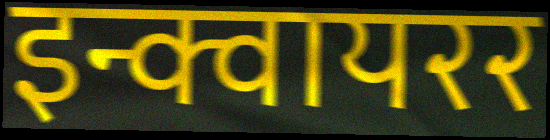
इन्क्वायरर